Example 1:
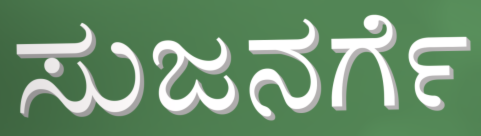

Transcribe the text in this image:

ಸುಜನರ್ಗೆ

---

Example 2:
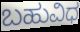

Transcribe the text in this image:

ಬಹುವಿಧ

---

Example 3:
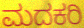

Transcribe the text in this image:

ಮದಕರಿ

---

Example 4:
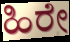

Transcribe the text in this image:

ಹಿರೇ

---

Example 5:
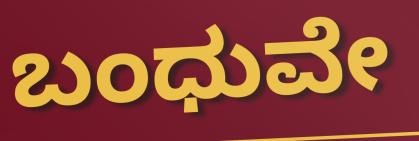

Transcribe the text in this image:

ಬಂಧುವೇ